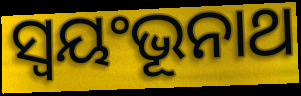
ସ୍ଵୟଂଭୂନାଥ